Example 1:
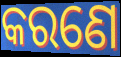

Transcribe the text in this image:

କରଣେ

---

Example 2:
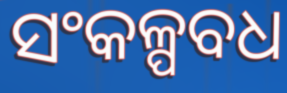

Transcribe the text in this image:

ସଂକଳ୍ପବଧ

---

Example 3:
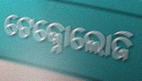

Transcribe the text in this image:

ଟେକ୍ନୋଲୋଜି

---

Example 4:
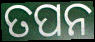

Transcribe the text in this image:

ତପନ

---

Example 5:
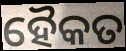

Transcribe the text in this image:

ହୈକତ